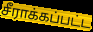
சீராக்கப்பட்ட